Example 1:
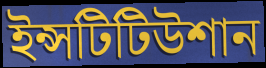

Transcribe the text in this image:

ইন্সটিটিউশান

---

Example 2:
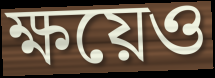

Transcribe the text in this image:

ক্ষয়েও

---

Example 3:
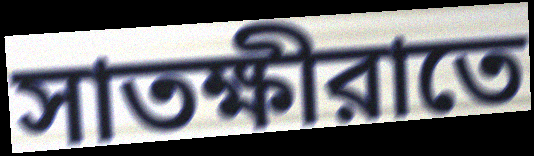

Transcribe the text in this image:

সাতক্ষীরাতে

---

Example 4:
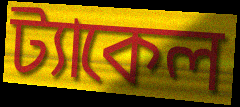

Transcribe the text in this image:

ট্যাকেল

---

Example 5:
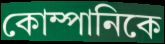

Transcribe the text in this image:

কোম্পানিকে